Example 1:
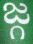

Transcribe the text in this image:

జ్గ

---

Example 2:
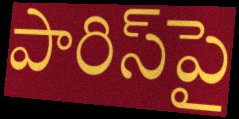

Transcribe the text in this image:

పారిస్‌పై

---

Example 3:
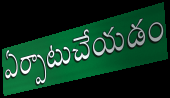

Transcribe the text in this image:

ఏర్పాటుచేయడం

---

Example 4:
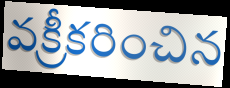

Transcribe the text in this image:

వక్రీకరించిన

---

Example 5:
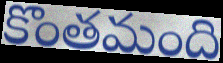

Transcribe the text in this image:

కొంతమంది